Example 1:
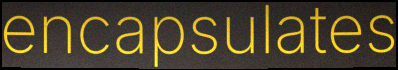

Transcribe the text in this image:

encapsulates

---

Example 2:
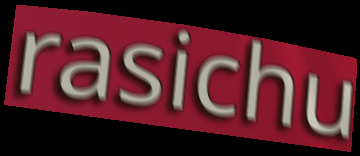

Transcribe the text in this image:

rasichu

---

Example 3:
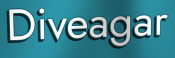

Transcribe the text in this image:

Diveagar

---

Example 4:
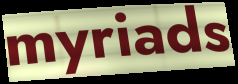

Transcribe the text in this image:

myriads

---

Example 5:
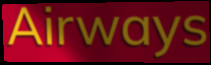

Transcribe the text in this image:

Airways